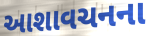
આશાવચનના